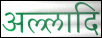
अल्लादि